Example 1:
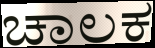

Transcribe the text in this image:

ಚಾಲಕ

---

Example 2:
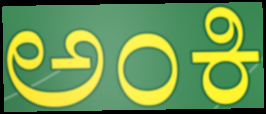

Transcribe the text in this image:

ಅಂಕಿ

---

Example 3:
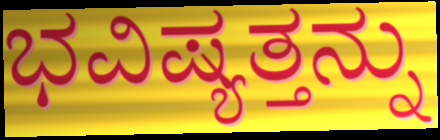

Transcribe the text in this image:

ಭವಿಷ್ಯತ್ತನ್ನು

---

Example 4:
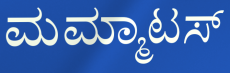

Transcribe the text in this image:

ಮಮ್ಮಾಟಸ್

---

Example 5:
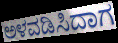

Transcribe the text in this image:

ಅಳವಡಿಸಿದಾಗ